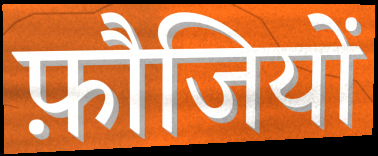
फ़ौजियों